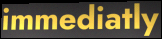
immediatly